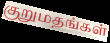
குறுமதங்கள்